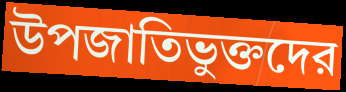
উপজাতিভুক্তদের